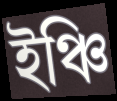
ইঞ্চি